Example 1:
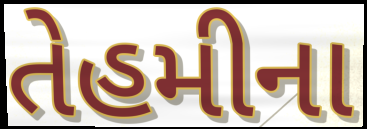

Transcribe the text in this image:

તેહમીના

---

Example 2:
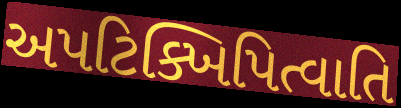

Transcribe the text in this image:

અપટિક્ખિપિત્વાતિ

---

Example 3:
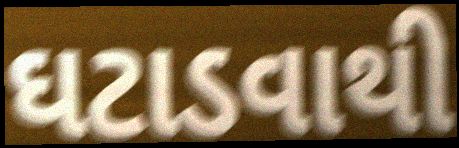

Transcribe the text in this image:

ઘટાડવાથી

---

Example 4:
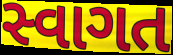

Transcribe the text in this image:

સ્વાગત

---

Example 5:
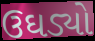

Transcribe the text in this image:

ઉઘડ્યો